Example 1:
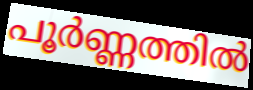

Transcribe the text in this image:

പൂർണ്ണത്തിൽ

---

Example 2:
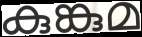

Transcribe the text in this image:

കുങ്കുമ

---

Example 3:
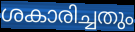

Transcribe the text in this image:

ശകാരിച്ചതും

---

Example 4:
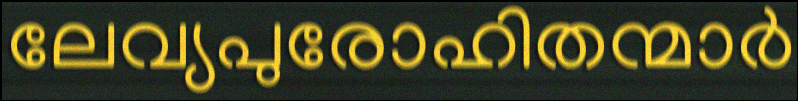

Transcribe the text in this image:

ലേവ്യപുരോഹിതന്മാർ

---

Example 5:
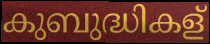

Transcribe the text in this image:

കുബുദ്ധികള്